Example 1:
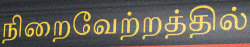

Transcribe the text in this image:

நிறைவேற்றத்தில்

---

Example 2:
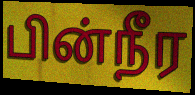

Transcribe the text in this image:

பின்நீர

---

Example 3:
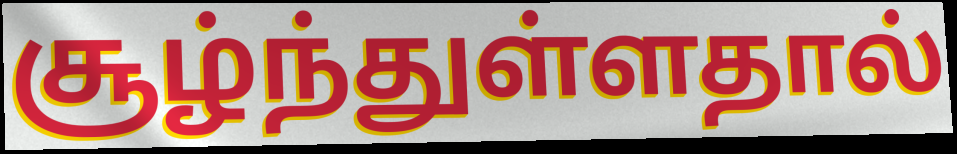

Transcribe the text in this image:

சூழ்ந்துள்ளதால்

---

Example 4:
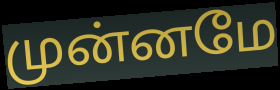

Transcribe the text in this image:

முன்னமே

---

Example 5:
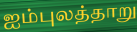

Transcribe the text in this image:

ஐம்புலத்தாறு